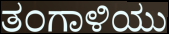
ತಂಗಾಳಿಯು